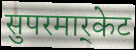
सुपरमार्केट